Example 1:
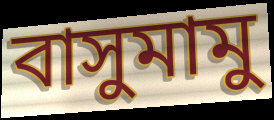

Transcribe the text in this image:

বাসুমামু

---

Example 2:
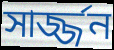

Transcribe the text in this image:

সার্জ্জন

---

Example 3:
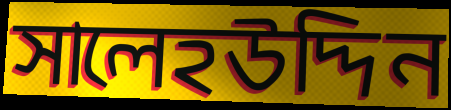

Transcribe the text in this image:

সালেহউদ্দিন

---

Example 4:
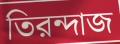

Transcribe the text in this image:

তিরন্দাজ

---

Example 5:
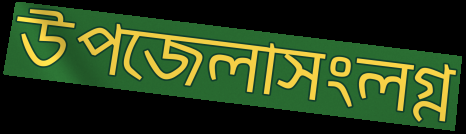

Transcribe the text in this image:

উপজেলাসংলগ্ন